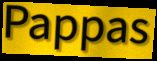
Pappas